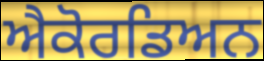
ਐਕੋਰਡਿਅਨ